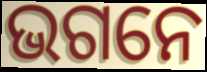
ଭଗନେ